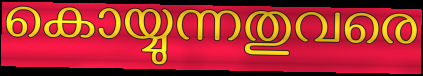
കൊയ്യുന്നതുവരെ